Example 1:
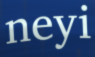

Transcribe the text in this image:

neyi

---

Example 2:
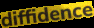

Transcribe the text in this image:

diffidence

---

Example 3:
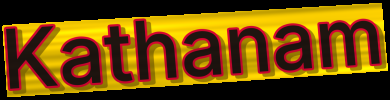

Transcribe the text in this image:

Kathanam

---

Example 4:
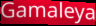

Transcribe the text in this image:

Gamaleya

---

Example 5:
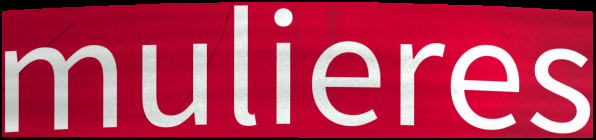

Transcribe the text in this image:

mulieres